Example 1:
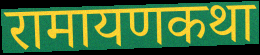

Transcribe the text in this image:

रामायणकथा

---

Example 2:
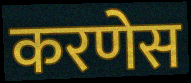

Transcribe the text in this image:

करणेस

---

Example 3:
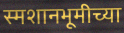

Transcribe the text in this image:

स्मशानभूमीच्या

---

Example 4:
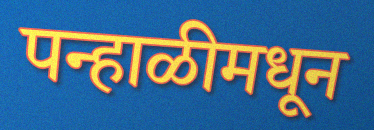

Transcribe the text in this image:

पन्हाळीमधून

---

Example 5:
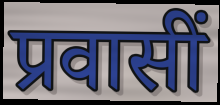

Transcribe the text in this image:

प्रवासीं